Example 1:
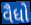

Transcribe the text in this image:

વૈધો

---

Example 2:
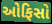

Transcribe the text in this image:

ઓફિસો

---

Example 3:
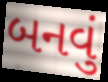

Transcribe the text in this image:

બનવું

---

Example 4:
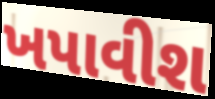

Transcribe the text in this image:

ખપાવીશ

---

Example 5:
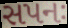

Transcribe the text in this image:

સપનઃ